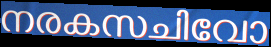
നരകസചിവോ